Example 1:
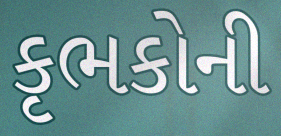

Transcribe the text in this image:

કૃભકોની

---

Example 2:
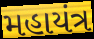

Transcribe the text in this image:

મહાયંત્ર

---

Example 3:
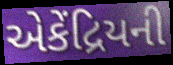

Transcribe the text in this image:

એકેંદ્રિયની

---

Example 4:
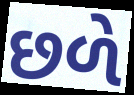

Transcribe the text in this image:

છળે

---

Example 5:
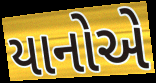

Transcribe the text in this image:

યાનોએ